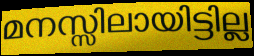
മനസ്സിലായിട്ടില്ല